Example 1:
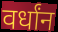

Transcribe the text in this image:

वर्धांन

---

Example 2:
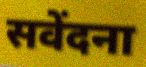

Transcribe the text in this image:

सवेंदना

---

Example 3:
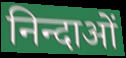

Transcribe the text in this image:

निन्दाओं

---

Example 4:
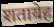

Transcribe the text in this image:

शतायेह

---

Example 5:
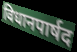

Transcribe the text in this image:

विधानपार्षद